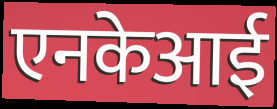
एनकेआई